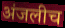
अंजलीच